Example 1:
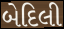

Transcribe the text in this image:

બેદિલી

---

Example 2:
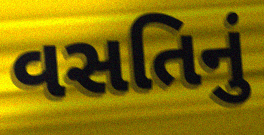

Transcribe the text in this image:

વસતિનું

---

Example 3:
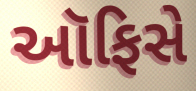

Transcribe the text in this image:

ઑફિસે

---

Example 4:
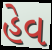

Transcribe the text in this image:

હેવ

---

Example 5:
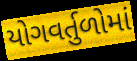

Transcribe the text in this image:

યોગવર્તુળોમાં